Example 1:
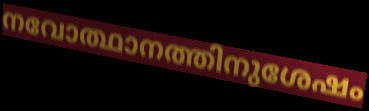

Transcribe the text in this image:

നവോത്ഥാനത്തിനുശേഷം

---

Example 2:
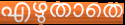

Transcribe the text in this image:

എഴുതാതെ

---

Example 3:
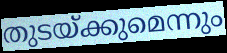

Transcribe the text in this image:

തുടയ്ക്കുമെന്നും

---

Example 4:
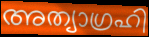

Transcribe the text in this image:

അത്യാഗ്രഹി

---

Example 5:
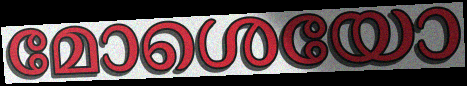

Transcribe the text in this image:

മോശെയോ